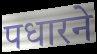
पधारने